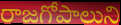
రాజగోపాలుని